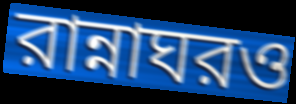
রান্নাঘরও